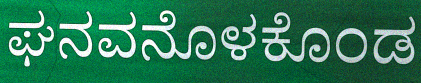
ಘನವನೊಳಕೊಂಡ